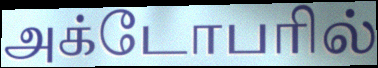
அக்டோபரில்